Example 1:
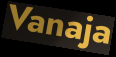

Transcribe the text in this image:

Vanaja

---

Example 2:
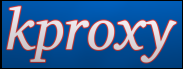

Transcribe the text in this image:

kproxy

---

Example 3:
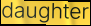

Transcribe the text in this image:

daughter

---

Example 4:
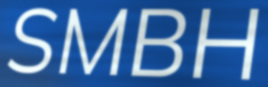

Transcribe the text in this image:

SMBH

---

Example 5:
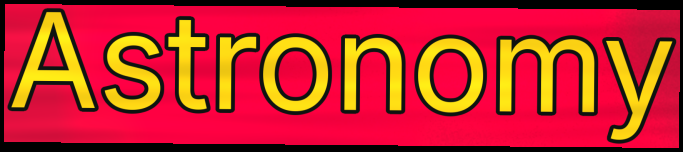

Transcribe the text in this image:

Astronomy